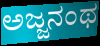
ಅಜ್ಜನಂಥ